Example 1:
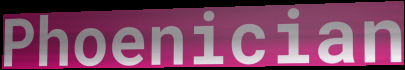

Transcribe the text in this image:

Phoenician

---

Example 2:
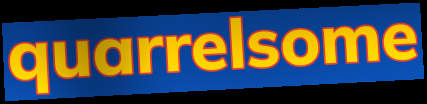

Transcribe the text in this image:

quarrelsome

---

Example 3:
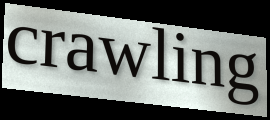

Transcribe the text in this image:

crawling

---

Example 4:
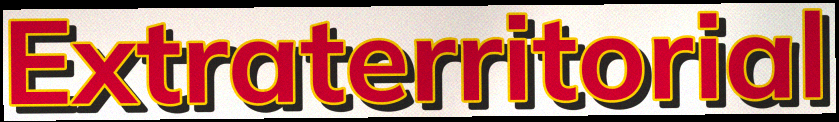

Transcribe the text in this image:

Extraterritorial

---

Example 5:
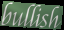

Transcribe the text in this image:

bullish